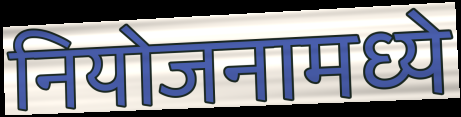
नियोजनामध्ये